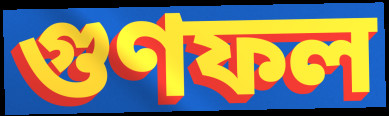
গুণফল